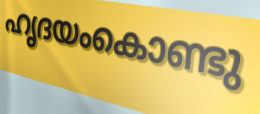
ഹൃദയംകൊണ്ടു